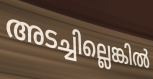
അടച്ചില്ലെങ്കിൽ